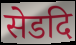
सेडदि